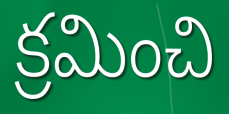
క్రమించి